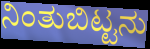
ನಿಂತುಬಿಟ್ಟನು